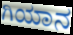
ಗಿಯಾನ